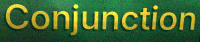
Conjunction